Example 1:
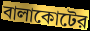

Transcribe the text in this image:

বালাকোটের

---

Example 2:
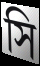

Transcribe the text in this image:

সি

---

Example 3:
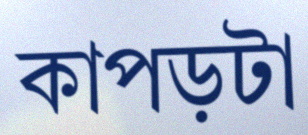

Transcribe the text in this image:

কাপড়টা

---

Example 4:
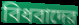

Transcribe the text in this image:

বিধবাদের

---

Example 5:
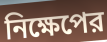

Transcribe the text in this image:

নিক্ষেপের